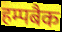
हम्पबैक